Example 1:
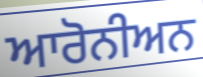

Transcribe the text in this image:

ਆਰੋਨੀਅਨ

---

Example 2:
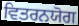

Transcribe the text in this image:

ਵਿਤਰਨਯੋਗ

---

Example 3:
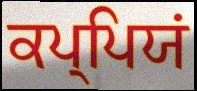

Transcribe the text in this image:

ਕਪ੍ਪਿਯਂ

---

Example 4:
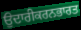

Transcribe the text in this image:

ਉਦਾਰੀਕਰਨਭਾਰਤ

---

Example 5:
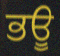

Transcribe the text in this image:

ਭਊ